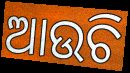
ଆଉଚି